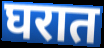
घरात